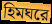
হিমঘরে